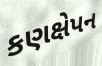
કણક્ષેપન